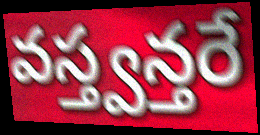
వస్త్వన్తరే